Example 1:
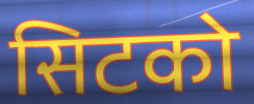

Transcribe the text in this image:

सिटको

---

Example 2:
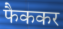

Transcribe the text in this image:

फैककर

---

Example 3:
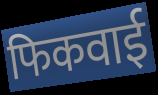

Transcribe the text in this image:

फिकवाई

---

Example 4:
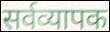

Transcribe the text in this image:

सर्वव्यापक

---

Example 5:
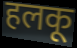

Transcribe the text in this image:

हलकू